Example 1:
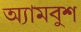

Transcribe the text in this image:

অ্যামবুশ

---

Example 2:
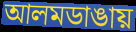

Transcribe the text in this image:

আলমডাঙায়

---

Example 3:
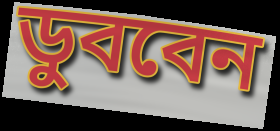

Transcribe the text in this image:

ডুববেন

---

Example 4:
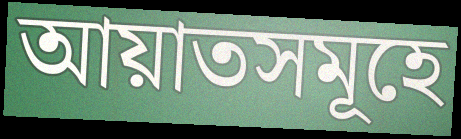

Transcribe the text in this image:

আয়াতসমূহে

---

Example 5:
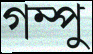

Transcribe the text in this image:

গম্পু